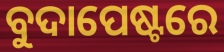
ବୁଦାପେଷ୍ଟରେ